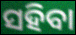
ସହିବା